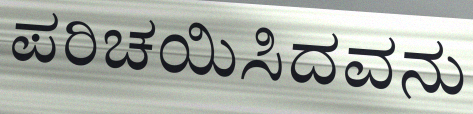
ಪರಿಚಯಿಸಿದವನು